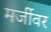
मर्जीवर